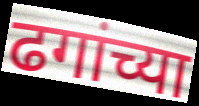
ढगांच्या